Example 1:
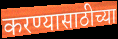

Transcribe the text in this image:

करण्यासाठीच्या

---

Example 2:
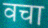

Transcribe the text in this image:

वचा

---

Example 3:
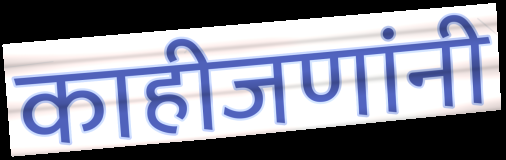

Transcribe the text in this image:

काहीजणांनी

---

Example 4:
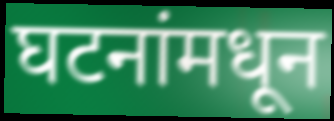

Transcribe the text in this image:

घटनांमधून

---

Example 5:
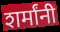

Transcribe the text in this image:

शर्मांनी